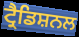
ਟ੍ਰੈਡਿਸ਼ਨਲ